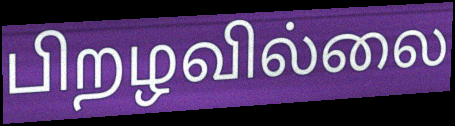
பிறழவில்லை